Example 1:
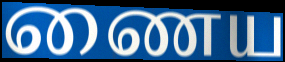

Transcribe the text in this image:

ணைய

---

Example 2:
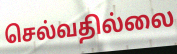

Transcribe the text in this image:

செல்வதில்லை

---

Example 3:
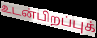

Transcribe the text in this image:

உடன்பிறப்புக்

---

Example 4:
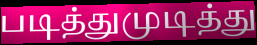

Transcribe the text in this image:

படித்துமுடித்து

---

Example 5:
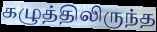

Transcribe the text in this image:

கழுத்திலிருந்த